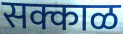
सक्काळ